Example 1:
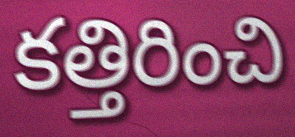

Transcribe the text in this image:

కత్తిరించి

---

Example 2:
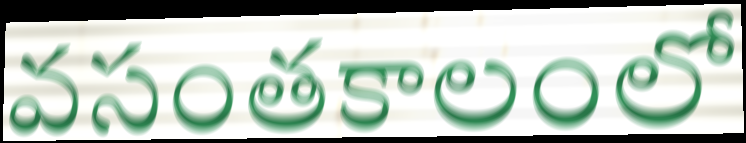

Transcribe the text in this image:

వసంతకాలంలో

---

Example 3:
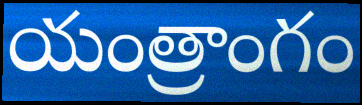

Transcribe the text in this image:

యంత్రాంగం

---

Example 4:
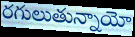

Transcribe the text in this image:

రగులుతున్నాయో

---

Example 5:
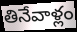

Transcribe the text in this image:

తినేవాళ్లం